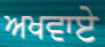
ਅਖਵਾਏ